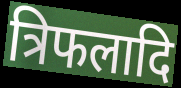
त्रिफलादि